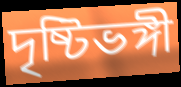
দৃষ্টিভঙ্গী